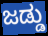
ಜಡ್ಡು